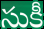
సుకీ